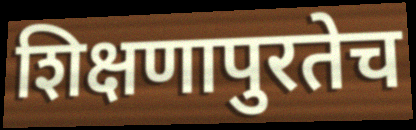
शिक्षणापुरतेच